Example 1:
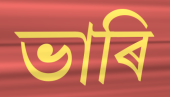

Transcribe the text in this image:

ভাৰি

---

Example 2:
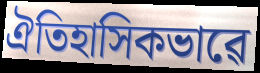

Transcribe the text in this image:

ঐতিহাসিকভাৱে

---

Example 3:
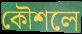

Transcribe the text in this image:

কৌশলে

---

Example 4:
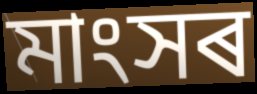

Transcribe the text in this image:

মাংসৰ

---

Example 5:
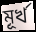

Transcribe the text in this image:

মূৰ্খ